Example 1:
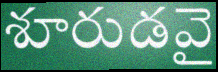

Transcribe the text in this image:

శూరుడవై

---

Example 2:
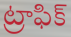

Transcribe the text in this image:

ట్రాఫిక్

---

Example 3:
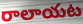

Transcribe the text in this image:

రాలాయట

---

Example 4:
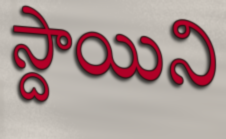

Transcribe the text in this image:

స్దాయిని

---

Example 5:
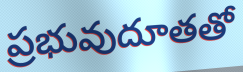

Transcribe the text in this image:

ప్రభువుదూతతో